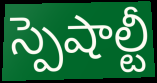
స్పెషాల్టీ